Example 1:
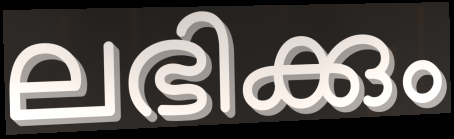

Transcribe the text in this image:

ലഭിക്കും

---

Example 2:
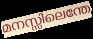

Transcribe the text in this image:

മനസ്സിലെന്തേ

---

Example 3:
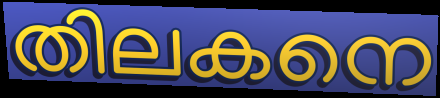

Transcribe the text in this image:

തിലകനെ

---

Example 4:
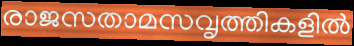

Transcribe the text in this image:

രാജസതാമസവൃത്തികളിൽ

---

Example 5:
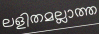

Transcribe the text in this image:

ലളിതമല്ലാത്ത